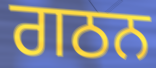
ਗਠਨ